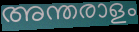
അന്തരാളം